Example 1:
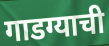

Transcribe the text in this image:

गाडग्याची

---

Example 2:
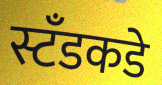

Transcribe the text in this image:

स्टॅंडकडे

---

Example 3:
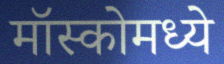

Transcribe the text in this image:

मॉस्कोमध्ये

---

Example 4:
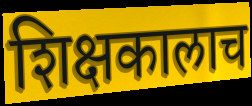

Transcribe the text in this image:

शिक्षकालाच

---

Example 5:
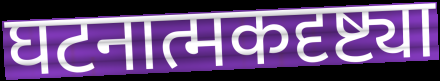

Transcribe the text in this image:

घटनात्मकदृष्ट्या